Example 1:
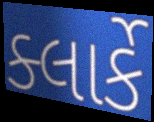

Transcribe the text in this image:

ક્લાર્કે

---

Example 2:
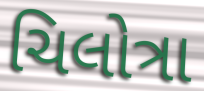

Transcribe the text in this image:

ચિલોત્રા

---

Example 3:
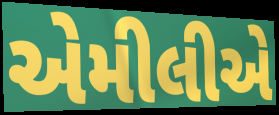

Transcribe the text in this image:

એમીલીએ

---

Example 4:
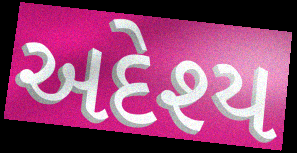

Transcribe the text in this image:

અદેશ્ય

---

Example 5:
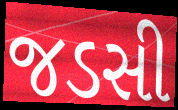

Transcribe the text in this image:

જડસી